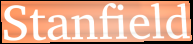
Stanfield